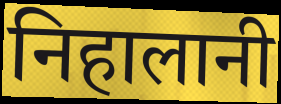
निहालानी